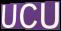
UCU